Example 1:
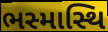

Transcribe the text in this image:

ભસ્માસ્થિ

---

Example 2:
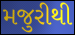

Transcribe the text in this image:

મજુરીથી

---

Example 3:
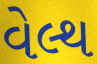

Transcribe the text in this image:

વેલ્થ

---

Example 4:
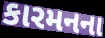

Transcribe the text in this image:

કારમનના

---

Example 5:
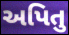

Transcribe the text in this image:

અપિતુ